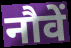
नौवें